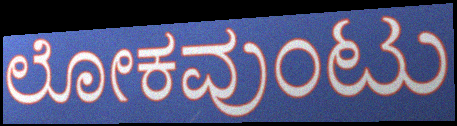
ಲೋಕವುಂಟು